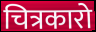
चित्रकारो